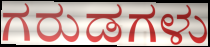
ಗರುಡಗಳು